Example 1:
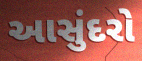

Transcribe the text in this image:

આસુંદરો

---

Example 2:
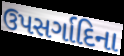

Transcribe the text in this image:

ઉપસર્ગાદિના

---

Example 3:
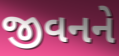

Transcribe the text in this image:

જીવનને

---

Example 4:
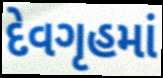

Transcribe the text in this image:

દેવગૃહમાં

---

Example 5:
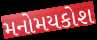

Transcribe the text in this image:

મનોમયકોશ